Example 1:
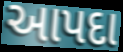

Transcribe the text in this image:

આપદા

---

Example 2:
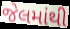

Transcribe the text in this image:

જેલમાંથી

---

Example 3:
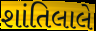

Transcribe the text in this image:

શાંતિલાલે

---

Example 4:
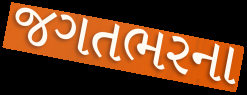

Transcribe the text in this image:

જગતભરના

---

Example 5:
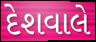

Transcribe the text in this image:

દેશવાલે